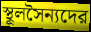
স্থূলসৈন্যদের